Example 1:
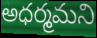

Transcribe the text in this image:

అధర్మమని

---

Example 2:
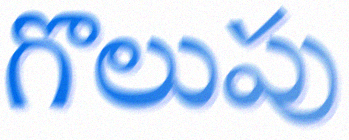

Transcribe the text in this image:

గొలుపు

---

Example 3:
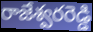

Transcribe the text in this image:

రాజేశ్వరరెడ్డి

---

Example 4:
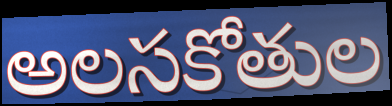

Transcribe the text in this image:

అలసకోతుల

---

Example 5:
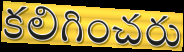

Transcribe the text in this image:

కలిగించరు